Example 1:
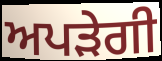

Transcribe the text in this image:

ਅਪੜੇਗੀ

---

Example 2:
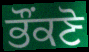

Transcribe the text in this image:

ਭੌਂਕਣੋ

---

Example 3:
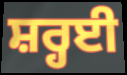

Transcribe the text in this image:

ਸ਼ਰ੍ਹਈ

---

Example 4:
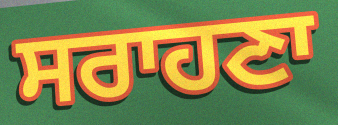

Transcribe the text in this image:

ਸਰਾਹਣਾ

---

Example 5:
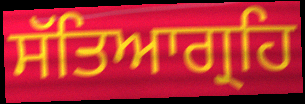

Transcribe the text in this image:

ਸੱਤਿਆਗ੍ਰਹਿ